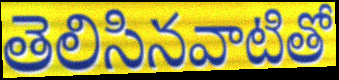
తెలిసినవాటితో